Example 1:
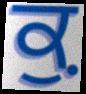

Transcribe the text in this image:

ਕ਼ੁ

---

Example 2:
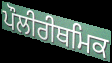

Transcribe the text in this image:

ਪੌਲੀਰੀਥਮਿਕ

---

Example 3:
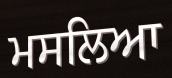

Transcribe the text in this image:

ਮਸਲਿਆ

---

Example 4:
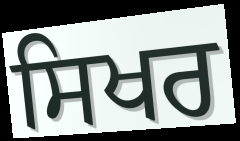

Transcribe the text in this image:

ਸਿਖਰ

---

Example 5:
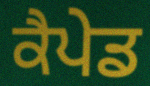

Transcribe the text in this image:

ਕੈਪੇਡ